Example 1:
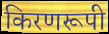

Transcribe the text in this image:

किरणरूपी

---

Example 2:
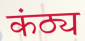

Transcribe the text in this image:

कंठ्य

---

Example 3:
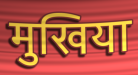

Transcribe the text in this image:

मुखिया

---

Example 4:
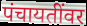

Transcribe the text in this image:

पंचायतींवर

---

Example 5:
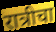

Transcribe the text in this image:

रात्रीचा